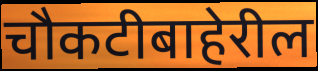
चौकटीबाहेरील